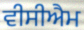
ਵੀਸੀਐਮ